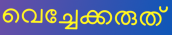
വെച്ചേക്കരുത്